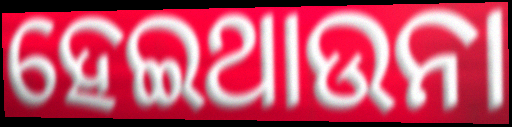
ହେଇଥାଉନା